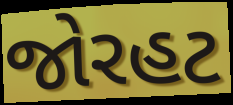
જોરહટ